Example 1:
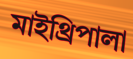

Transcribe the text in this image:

মাইথ্রিপালা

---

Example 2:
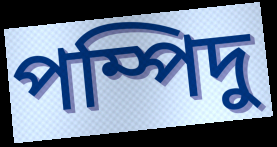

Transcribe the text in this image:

পম্পিদু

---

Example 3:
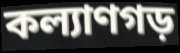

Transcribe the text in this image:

কল্যাণগড়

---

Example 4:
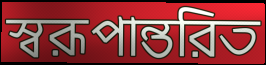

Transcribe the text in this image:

স্বরূপান্তরিত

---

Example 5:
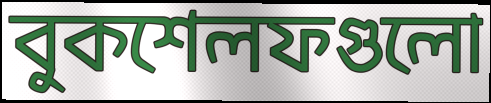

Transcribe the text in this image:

বুকশেলফগুলো